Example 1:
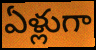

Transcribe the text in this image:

ఏళ్లుగా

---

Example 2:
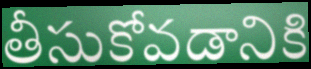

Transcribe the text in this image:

తీసుకోవడానికి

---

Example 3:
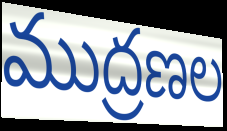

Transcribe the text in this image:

ముద్రణల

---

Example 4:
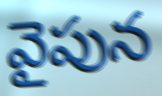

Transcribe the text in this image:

వైపున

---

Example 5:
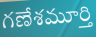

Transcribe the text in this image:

గణేశమూర్తి